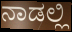
ನಾಡಲ್ಲಿ